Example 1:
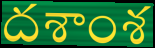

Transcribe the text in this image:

దశాంశ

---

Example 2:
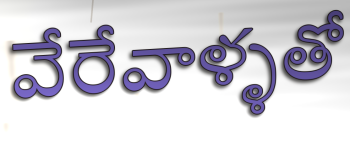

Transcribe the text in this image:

వేరేవాళ్ళతో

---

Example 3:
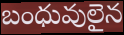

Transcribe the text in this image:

బంధువులైన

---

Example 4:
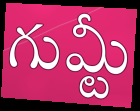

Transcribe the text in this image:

గుమ్టీ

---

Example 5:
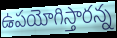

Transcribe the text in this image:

ఉపయోగిస్తారన్న